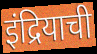
इंद्रियाची